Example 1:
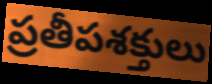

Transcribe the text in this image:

ప్రతీపశక్తులు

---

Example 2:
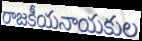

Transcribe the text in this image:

రాజకీయనాయకుల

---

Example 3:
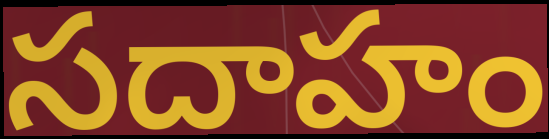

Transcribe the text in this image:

సదాహం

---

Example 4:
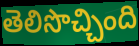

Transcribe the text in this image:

తెలిసొచ్చింది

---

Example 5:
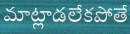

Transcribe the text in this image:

మాట్లాడలేకపోతే